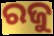
ରଜୁ